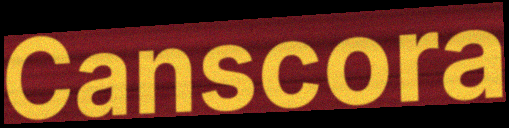
Canscora